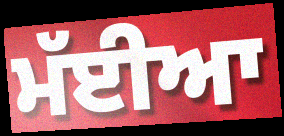
ਮੱਈਆ